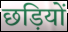
छड़ियों